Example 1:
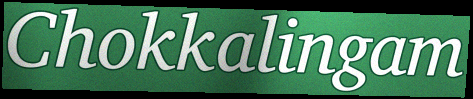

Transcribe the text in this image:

Chokkalingam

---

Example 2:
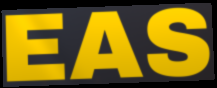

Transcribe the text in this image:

EAS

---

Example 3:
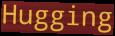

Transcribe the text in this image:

Hugging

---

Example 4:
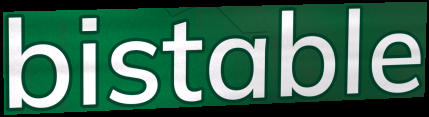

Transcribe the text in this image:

bistable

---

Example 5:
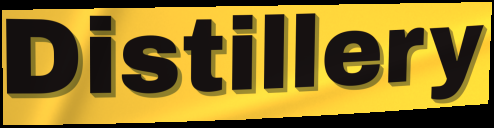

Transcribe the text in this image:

Distillery